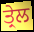
ਤ੍ਰੇਲ